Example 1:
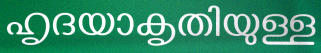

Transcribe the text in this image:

ഹൃദയാകൃതിയുള്ള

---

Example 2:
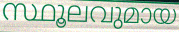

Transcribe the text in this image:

സ്ഥൂലവുമായ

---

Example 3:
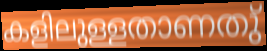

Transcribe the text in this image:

കളിലുള്ളതാണതു്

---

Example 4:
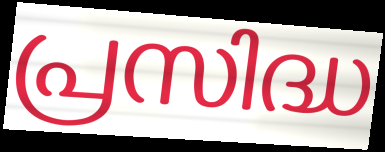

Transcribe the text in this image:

പ്രസിദ്ധ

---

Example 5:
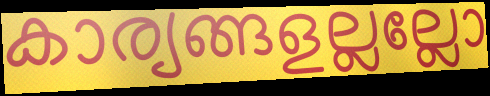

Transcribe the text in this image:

കാര്യങ്ങളല്ലല്ലോ